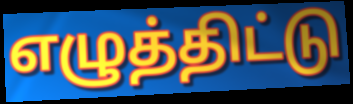
எழுத்திட்டு